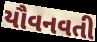
યૌવનવતી